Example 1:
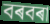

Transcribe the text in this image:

বৰবৰা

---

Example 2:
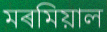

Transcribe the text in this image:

মৰমিয়াল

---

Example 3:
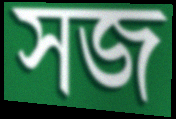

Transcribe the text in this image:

সজ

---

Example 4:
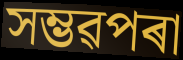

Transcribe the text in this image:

সম্ভৱপৰা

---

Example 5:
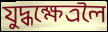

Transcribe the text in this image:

যুদ্ধক্ষেত্ৰলৈ